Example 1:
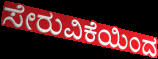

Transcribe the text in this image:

ಸೇರುವಿಕೆಯಿಂದ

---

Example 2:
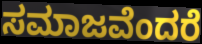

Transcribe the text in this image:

ಸಮಾಜವೆಂದರೆ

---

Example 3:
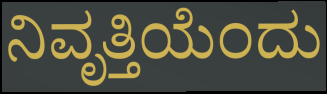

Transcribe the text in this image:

ನಿವೃತ್ತಿಯೆಂದು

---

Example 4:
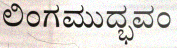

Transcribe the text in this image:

ಲಿಂಗಮುದ್ಭವಂ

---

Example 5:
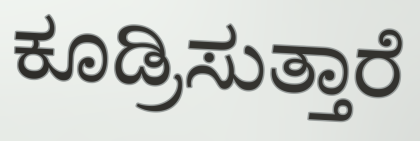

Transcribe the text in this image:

ಕೂಡ್ರಿಸುತ್ತಾರೆ